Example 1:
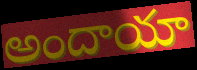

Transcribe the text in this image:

అందాయా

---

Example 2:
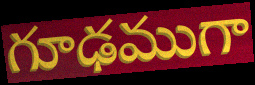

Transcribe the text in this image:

గూఢముగా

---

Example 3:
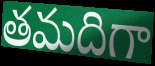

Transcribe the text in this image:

తమదిగా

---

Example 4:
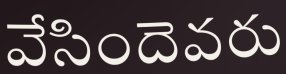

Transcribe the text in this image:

వేసిందెవరు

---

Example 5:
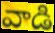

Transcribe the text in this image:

వాడి